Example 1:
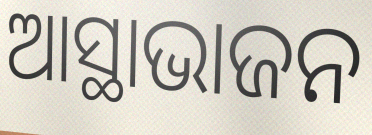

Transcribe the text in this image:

ଆସ୍ଥାଭାଜନ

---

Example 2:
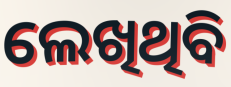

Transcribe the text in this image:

ଲେଖିଥିବି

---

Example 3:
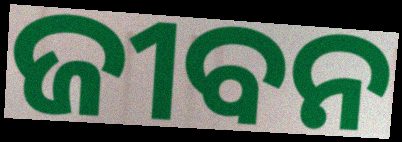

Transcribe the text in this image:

ଜୀବନ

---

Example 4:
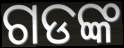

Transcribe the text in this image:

ଗଡଙ୍କ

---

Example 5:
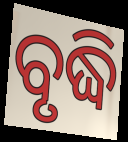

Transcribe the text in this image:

ବୃଦ୍ଧି